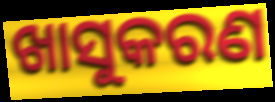
ଖାସୁକରଣ